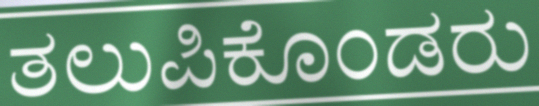
ತಲುಪಿಕೊಂಡರು